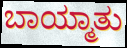
ಬಾಯ್ಮಾತು